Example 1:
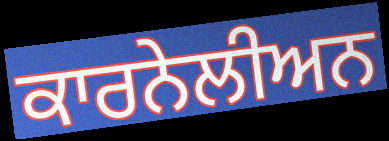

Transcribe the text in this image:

ਕਾਰਨੇਲੀਅਨ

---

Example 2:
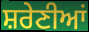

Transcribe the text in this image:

ਸ਼ਰੇਣੀਆਂ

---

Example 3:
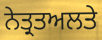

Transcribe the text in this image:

ਨੇਤ੍ਰਤਅਲਤੇ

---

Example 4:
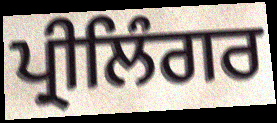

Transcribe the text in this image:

ਪ੍ਰੀਲਿੰਗਰ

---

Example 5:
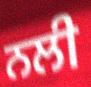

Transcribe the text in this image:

ਨਲੀ